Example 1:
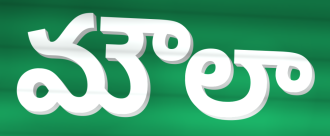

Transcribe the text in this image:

మౌలా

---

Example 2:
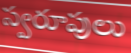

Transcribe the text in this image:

స్వరూపులు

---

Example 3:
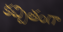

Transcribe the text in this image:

కచ్చితంగా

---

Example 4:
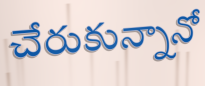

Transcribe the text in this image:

చేరుకున్నానో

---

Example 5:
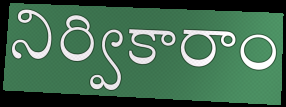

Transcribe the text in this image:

నిర్వికారాం